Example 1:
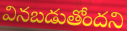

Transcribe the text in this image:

వినబడుతోందని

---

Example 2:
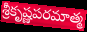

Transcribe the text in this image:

శ్రీకృష్ణపరమాత్మ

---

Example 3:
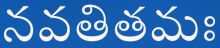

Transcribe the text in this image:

నవతితమః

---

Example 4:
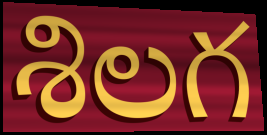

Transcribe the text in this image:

శిలగ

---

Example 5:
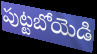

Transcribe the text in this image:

పుట్టబోయెడి